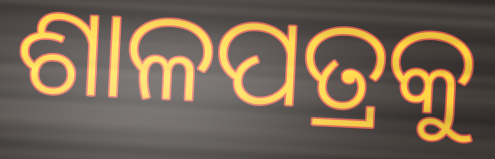
ଶାଳପତ୍ରକୁ